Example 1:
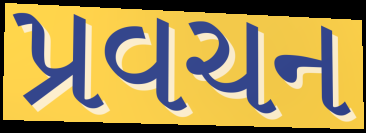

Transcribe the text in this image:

પ્રવચન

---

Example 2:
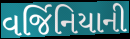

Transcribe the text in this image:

વર્જિનિયાની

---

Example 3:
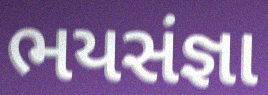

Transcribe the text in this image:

ભયસંજ્ઞા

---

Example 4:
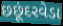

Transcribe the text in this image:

છછૂંદરવેડા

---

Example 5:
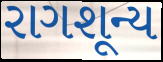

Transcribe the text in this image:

રાગશૂન્ય